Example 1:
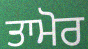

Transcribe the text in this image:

ਤਾਮੋਰ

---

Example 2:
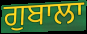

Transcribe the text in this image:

ਗੁਬਾਲਾ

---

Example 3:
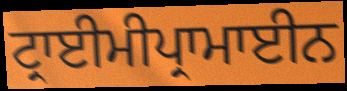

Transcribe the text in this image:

ਟ੍ਰਾਈਮੀਪ੍ਰਾਮਾਈਨ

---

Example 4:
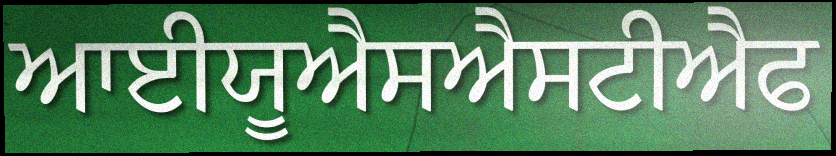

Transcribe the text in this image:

ਆਈਯੂਐਸਐਸਟੀਐਫ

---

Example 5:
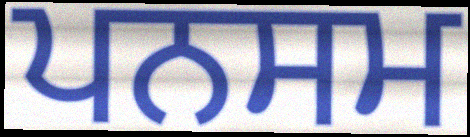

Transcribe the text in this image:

ਪਨਸਮ